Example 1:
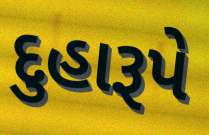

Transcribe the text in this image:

દુહારૂપે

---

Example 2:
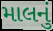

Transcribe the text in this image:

માલનું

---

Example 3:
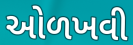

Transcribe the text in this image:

ઓળખવી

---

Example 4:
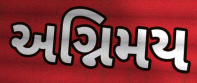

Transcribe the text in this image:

અગ્નિમય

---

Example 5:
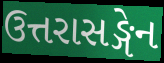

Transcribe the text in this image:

ઉત્તરાસઙ્ગેન